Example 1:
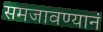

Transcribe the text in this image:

समजावण्यानं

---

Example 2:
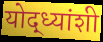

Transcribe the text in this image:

योद्ध्यांशी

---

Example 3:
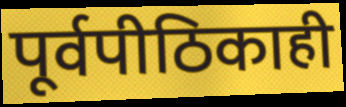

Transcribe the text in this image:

पूर्वपीठिकाही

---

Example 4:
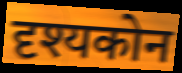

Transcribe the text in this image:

दृश्‍यकोन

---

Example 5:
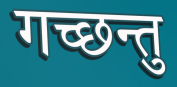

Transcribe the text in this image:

गच्छन्तु